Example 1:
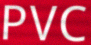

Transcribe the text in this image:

PVC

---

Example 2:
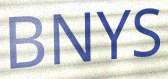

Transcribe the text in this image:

BNYS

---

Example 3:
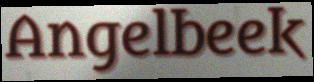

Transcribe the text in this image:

Angelbeek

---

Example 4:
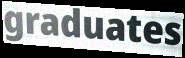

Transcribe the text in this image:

graduates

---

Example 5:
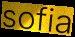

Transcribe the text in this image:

sofia